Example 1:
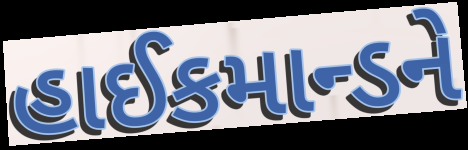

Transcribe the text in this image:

હાઈકમાન્ડને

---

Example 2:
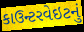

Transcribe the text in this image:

કાઉન્ટરવેઇટનું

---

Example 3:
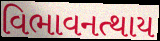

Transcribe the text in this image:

વિભાવનત્થાય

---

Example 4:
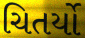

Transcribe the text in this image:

ચિતર્યો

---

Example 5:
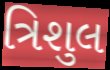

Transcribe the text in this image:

ત્રિશુલ